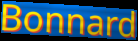
Bonnard